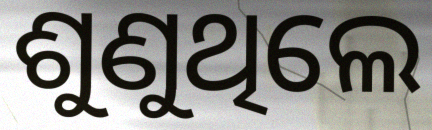
ଶୁଣୁଥିଲେ